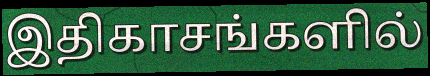
இதிகாசங்களில்